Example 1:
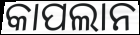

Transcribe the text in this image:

କାପଲାନ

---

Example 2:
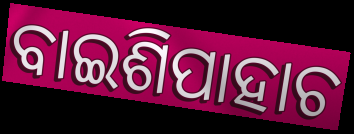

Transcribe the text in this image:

ବାଇଶିପାହାଚ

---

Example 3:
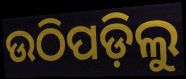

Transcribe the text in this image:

ଉଠିପଡ଼ିଲୁ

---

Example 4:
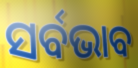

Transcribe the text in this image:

ସର୍ବଭାବ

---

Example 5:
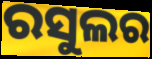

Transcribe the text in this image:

ରସୁଲର